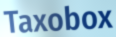
Taxobox